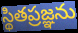
స్థితప్రజ్ఞను